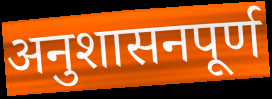
अनुशासनपूर्ण